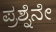
ಪ್ರಶ್ನೆನೇ